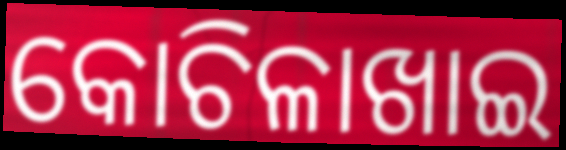
କୋଚିଳାଖାଇ